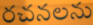
రచనలను